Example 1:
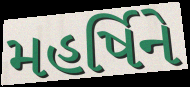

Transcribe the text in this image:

મહર્ષિને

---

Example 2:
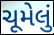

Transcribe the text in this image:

ચૂમેલું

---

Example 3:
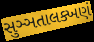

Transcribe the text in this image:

સુઞ્ઞતાલક્ખણં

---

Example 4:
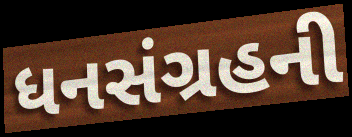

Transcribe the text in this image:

ધનસંગ્રહની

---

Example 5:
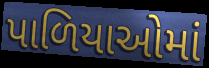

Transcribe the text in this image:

પાળિયાઓમાં